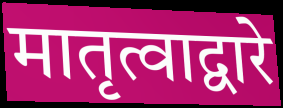
मातृत्वाद्वारे